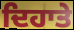
ਦਿਹਾਤੇ